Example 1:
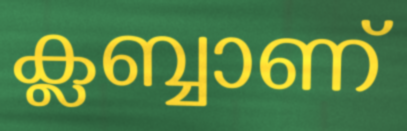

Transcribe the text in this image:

ക്ലബ്ബാണ്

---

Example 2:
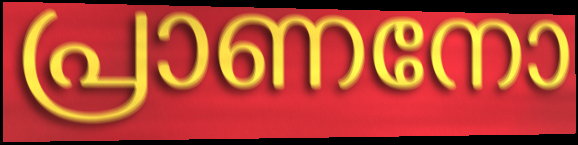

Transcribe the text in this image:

പ്രാണനോ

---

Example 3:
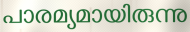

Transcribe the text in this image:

പാരമ്യമായിരുന്നു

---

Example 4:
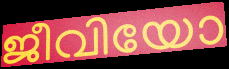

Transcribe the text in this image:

ജീവിയോ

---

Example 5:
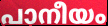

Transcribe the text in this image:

പാനീയം